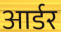
आर्डर